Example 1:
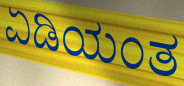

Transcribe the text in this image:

ಏಡಿಯಂತ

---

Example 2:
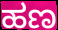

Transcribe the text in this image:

ಹಣ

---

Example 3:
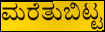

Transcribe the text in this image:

ಮರೆತುಬಿಟ್ಟ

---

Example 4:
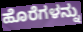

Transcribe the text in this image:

ಹೊರೆಗಳನ್ನು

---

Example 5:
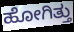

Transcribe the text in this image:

ಹೋಗಿತ್ತು